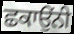
ਛਕਾਉਂਨੀ